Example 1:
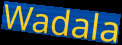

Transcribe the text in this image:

Wadala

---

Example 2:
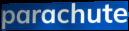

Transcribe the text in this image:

parachute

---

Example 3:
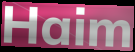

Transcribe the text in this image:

Haim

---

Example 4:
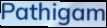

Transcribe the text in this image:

Pathigam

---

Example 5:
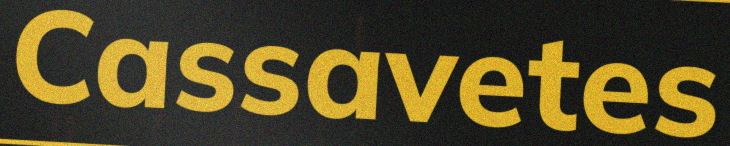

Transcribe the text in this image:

Cassavetes